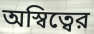
অস্বিত্বের